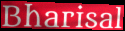
Bharisal